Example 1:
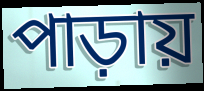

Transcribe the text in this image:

পাড়ায়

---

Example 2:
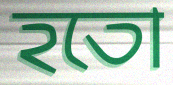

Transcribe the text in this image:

হতো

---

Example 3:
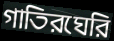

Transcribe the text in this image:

গাতিরঘেরি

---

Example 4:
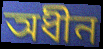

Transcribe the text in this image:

অধীন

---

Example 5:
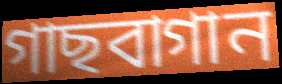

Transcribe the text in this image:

গাছবাগান